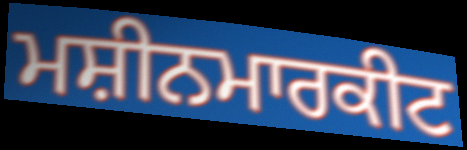
ਮਸ਼ੀਨਮਾਰਕੀਟ